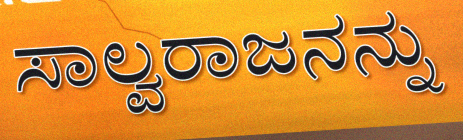
ಸಾಲ್ವರಾಜನನ್ನು